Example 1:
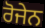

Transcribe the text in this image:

ਰੋਜੇਨ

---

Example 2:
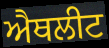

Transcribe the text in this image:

ਐਥਲੀਟ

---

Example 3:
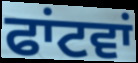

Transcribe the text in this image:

ਫਾਂਟਵਾਂ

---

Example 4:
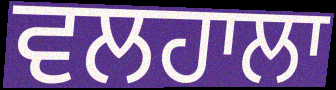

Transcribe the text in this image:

ਵਲਹਾਲਾ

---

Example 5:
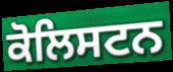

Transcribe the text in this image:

ਕੋਲਿਸਟਨ